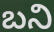
బని